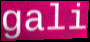
gali